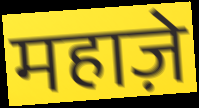
महाज़े